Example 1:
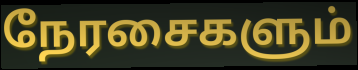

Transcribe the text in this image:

நேரசைகளும்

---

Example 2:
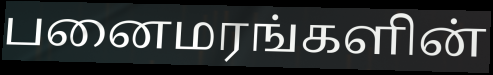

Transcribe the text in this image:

பனைமரங்களின்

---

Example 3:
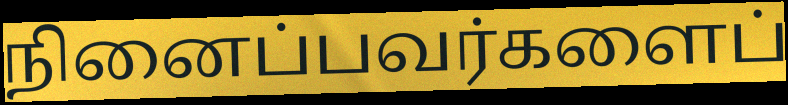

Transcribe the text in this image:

நினைப்பவர்களைப்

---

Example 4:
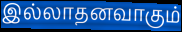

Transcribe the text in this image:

இல்லாதனவாகும்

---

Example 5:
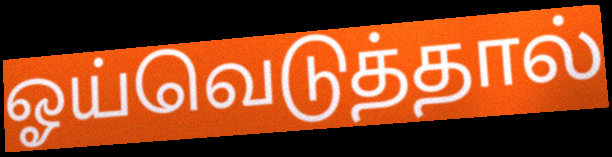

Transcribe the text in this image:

ஓய்வெடுத்தால்